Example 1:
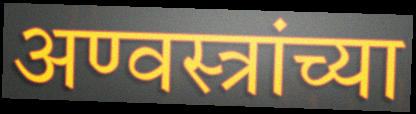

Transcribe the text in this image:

अण्वस्त्रांच्या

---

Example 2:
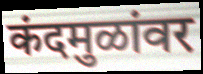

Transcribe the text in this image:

कंदमुळांवर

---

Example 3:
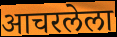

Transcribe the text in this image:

आचरलेला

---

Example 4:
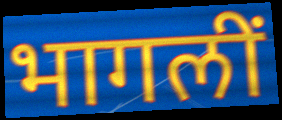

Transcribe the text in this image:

भागलीं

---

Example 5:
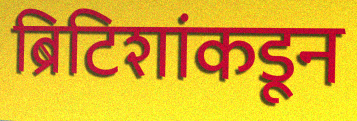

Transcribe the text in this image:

ब्रिटिशांकडून